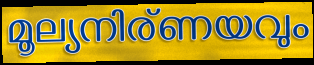
മൂല്യനിര്ണയവും